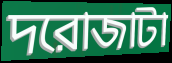
দরোজাটা